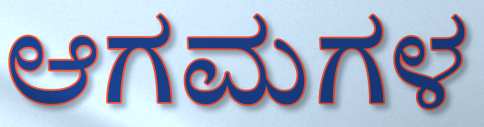
ಆಗಮಗಳ